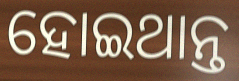
ହୋଇଥାନ୍ତ